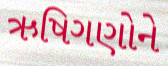
ઋષિગણોને